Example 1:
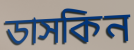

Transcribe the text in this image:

ডাসকিন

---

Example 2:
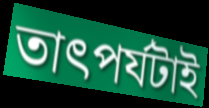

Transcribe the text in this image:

তাৎপর্যটাই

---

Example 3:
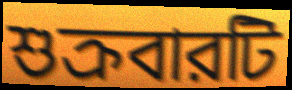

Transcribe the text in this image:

শুক্রবারটি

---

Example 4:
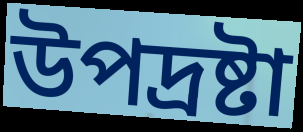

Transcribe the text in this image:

উপদ্রষ্টা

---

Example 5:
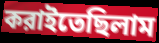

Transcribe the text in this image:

করাইতেছিলাম